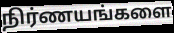
நிர்ணயங்களை